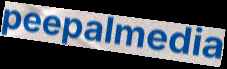
peepalmedia